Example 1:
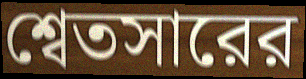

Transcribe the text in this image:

শ্বেতসারের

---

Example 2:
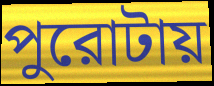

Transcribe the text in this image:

পুরোটায়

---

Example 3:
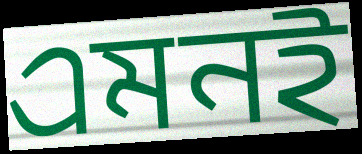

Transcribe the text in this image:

এমনই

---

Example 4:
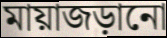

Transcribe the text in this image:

মায়াজড়ানো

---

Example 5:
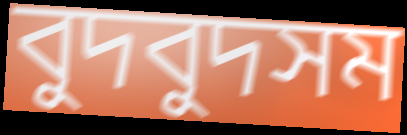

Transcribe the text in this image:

বুদবুদসম